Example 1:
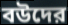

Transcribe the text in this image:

বউদের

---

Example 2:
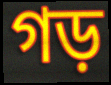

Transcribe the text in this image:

গড়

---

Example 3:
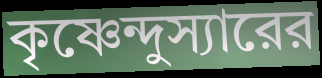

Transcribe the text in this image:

কৃষ্ণেন্দুস্যারের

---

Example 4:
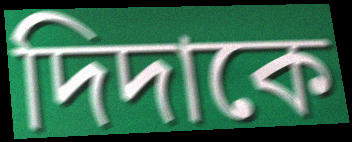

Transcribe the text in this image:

দিদাকে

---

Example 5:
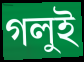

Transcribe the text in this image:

গলুই